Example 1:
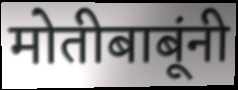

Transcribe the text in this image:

मोतीबाबूंनी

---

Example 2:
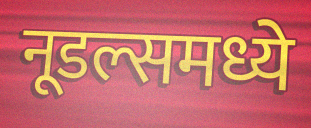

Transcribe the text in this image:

नूडल्समध्ये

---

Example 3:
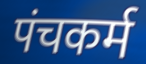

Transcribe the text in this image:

पंचकर्म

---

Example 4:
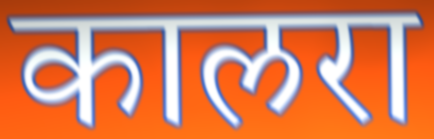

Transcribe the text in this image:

कालरा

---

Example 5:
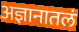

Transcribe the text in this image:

अज्ञानातलं